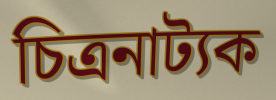
চিত্ৰনাট্যক